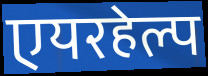
एयरहेल्प